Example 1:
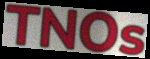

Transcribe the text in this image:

TNOs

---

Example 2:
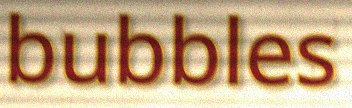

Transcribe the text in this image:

bubbles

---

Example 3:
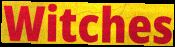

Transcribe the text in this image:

Witches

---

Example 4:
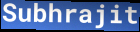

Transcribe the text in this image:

Subhrajit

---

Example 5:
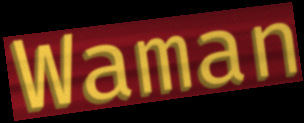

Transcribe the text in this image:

Waman